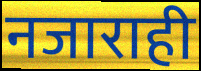
नजाराही